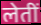
लेतीं